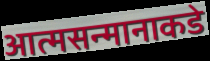
आत्मसन्मानाकडे